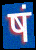
षं